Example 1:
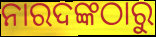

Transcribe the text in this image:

ନାରଦଙ୍କଠାରୁ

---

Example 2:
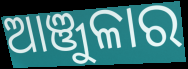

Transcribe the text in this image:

ଆଞ୍ଜୁଳାର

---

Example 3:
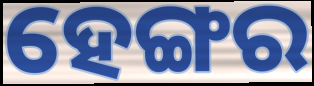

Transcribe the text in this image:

ହେଙ୍ଗର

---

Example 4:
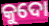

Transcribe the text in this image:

କୁଦୋ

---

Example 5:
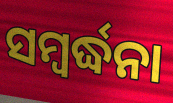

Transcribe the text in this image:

ସମ୍ୱର୍ଦ୍ଧନା